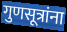
गुणसूत्रांना